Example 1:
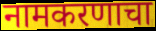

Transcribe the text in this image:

नामकरणाचा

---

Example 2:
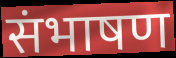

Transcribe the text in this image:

संभाषण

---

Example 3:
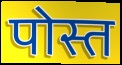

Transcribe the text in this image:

पोस्त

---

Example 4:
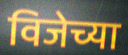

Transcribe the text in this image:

विजेच्या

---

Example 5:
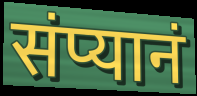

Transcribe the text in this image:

संप्यानं